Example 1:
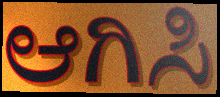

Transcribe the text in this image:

ಆಗಿಸಿ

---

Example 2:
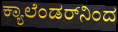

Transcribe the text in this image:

ಕ್ಯಾಲೆಂಡರ್‌ನಿಂದ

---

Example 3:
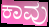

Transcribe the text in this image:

ಕಾವು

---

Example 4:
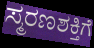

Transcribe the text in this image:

ಸ್ಮರಣಶಕ್ತಿಗೆ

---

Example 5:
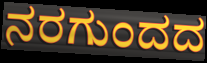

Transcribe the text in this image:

ನರಗುಂದದ